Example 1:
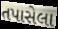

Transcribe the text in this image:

તપાસેલા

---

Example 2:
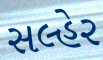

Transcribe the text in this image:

સલ્હેર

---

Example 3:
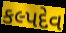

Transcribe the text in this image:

કલ્પદેવ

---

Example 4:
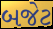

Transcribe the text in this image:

બજેટ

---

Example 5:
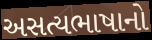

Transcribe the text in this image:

અસત્યભાષાનો